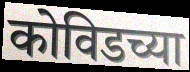
कोविडच्या